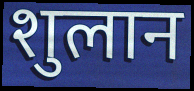
शुलान